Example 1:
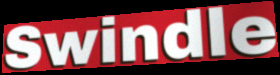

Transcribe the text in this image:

Swindle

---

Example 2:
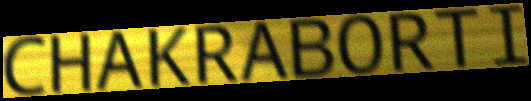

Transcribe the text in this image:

CHAKRABORTI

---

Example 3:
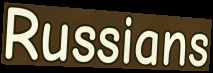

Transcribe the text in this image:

Russians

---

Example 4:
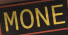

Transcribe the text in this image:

MONE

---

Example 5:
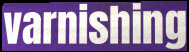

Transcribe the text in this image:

varnishing